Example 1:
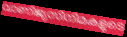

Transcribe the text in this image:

വാണിജ്യസിനിമകളുടെ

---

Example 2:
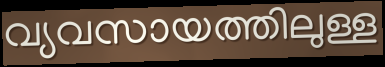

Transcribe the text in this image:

വ്യവസായത്തിലുള്ള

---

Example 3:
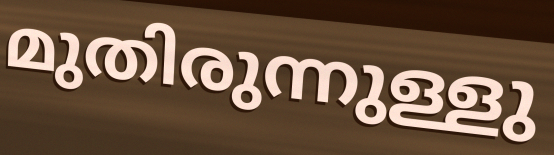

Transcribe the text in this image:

മുതിരുന്നുള്ളു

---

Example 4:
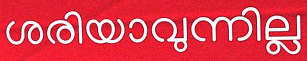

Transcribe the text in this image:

ശരിയാവുന്നില്ല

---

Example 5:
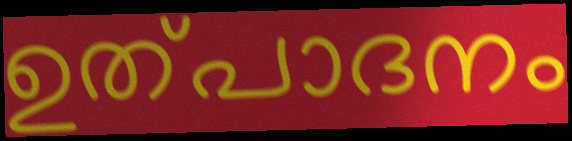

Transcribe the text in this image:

ഉത്പാദനം